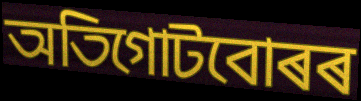
অতিগোটবোৰৰ